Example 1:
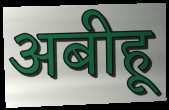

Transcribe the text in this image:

अबीहू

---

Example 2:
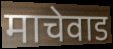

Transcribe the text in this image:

माचेवाड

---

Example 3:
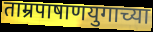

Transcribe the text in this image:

ताम्रपाषाणयुगाच्या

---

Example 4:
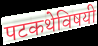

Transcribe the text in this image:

पटकथेविषयी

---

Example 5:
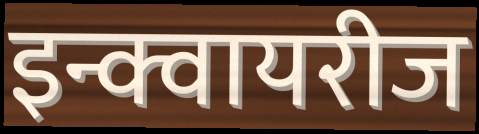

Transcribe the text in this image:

इन्क्वायरीज